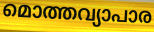
മൊത്തവ്യാപാര